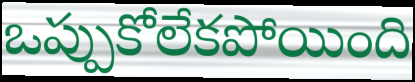
ఒప్పుకోలేకపోయింది